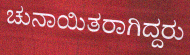
ಚುನಾಯಿತರಾಗಿದ್ದರು